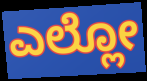
ಎಲ್ಲೋ